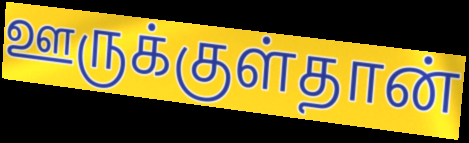
ஊருக்குள்தான்